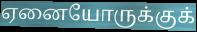
ஏனையோருக்குக்